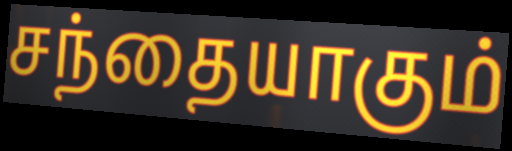
சந்தையாகும்